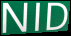
NID